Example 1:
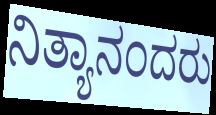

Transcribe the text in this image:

ನಿತ್ಯಾನಂದರು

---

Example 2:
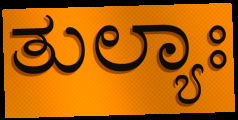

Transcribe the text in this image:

ತುಲ್ಯಾಃ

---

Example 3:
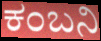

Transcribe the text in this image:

ಕಂಬನಿ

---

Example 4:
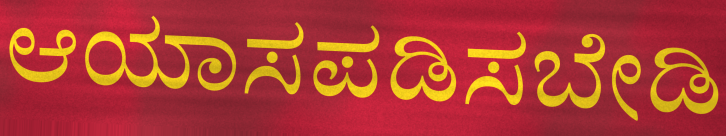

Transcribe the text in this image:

ಆಯಾಸಪಡಿಸಬೇಡಿ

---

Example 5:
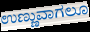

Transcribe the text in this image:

ಉಣ್ಣುವಾಗಲೂ